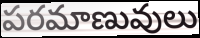
పరమాణువులు